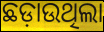
ଛଡ଼ାଉଥିଲା